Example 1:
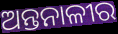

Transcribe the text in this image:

ଅନ୍ତନାଳୀର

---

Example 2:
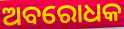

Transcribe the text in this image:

ଅବରୋଧକ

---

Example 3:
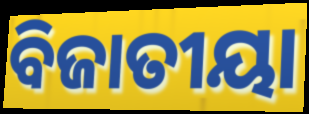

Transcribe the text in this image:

ବିଜାତୀୟା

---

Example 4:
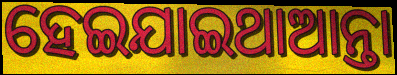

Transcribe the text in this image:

ହେଇଯାଇଥାଆନ୍ତା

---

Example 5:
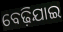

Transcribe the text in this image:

ବେଢ଼ିଯାଇ